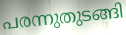
പരന്നുതുടങ്ങി